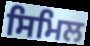
ਸਿਮਿਲ